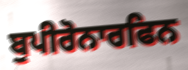
ਬੁਪੀਰੋਨਾਰਫਿਨ